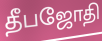
தீபஜோதி